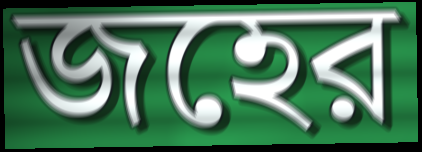
জহের